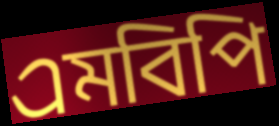
এমবিপি